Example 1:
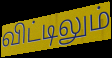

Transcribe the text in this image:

விட்டிலும்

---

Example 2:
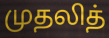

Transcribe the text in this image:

முதலித்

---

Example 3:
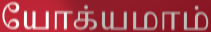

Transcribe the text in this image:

யோக்யமாம்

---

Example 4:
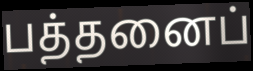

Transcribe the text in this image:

பத்தனைப்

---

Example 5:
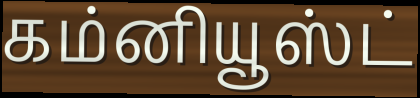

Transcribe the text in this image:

கம்னியூஸ்ட்